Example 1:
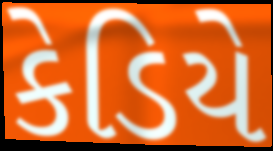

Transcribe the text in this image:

કેડિયે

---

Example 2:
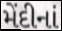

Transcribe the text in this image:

મેંદીનાં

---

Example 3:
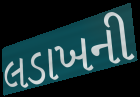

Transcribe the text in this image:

લડાખની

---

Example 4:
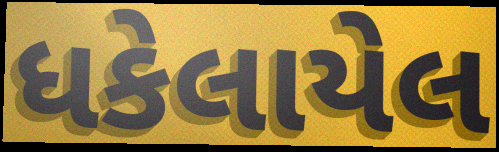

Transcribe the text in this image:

ધકેલાયેલ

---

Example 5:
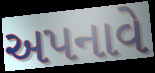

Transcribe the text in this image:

અપનાવે